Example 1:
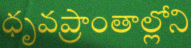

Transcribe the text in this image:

ధృవప్రాంతాల్లోని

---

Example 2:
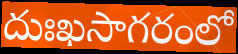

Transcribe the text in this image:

దుఃఖసాగరంలో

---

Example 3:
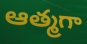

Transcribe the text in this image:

ఆత్మగా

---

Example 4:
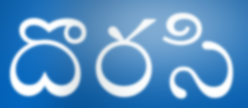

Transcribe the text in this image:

దొరసి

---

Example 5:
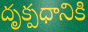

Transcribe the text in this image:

దృక్పధానికి